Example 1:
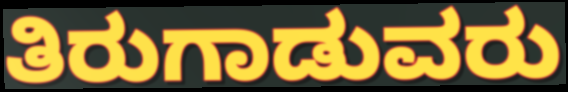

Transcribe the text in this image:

ತಿರುಗಾಡುವರು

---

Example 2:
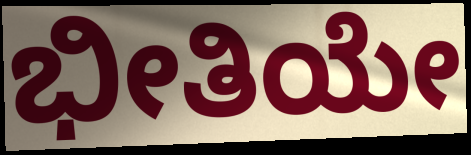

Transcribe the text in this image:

ಭೀತಿಯೇ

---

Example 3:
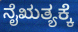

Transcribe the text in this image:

ನೈಋತ್ಯಕ್ಕೆ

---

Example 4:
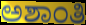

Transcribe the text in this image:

ಅಶಾಂತಿ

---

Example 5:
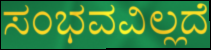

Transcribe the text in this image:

ಸಂಭವವಿಲ್ಲದೆ